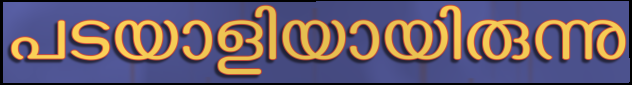
പടയാളിയായിരുന്നു